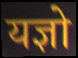
यज्ञो